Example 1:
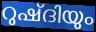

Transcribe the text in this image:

റുഷ്ദിയും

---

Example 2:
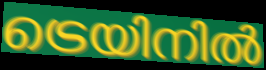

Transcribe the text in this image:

ട്രെയിനിൽ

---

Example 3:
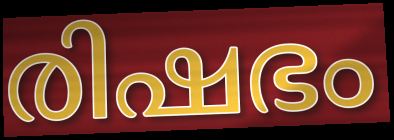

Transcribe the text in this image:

രിഷഭം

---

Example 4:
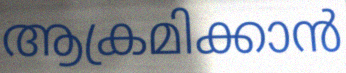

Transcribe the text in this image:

ആക്രമിക്കാൻ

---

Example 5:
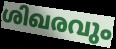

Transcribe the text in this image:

ശിഖരവും